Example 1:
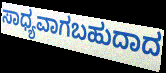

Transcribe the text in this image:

ಸಾಧ್ಯವಾಗಬಹುದಾದ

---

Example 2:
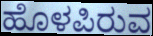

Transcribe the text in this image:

ಹೊಳಪಿರುವ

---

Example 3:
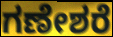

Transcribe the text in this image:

ಗಣೇಶರೆ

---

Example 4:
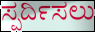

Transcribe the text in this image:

ಸ್ಪರ್ದಿಸಲು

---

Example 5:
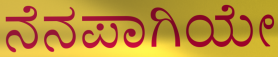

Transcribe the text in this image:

ನೆನಪಾಗಿಯೇ